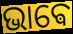
ଭାଵେ